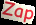
Zap